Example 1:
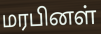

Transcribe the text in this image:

மரபினள்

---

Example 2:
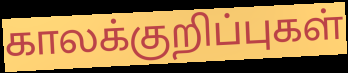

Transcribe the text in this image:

காலக்குறிப்புகள்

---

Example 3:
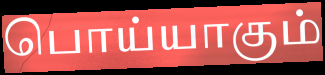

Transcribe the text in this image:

பொய்யாகும்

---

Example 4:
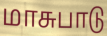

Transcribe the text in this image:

மாசுபாடு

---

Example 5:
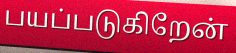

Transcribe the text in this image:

பயப்படுகிறேன்